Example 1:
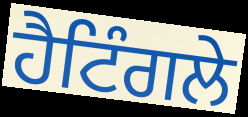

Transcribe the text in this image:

ਹੈਟਿੰਗਲੇ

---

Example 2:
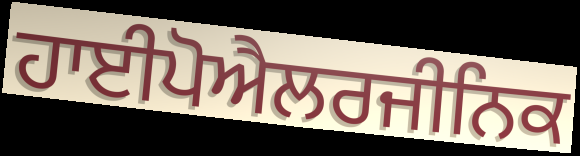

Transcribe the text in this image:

ਹਾਈਪੋਐਲਰਜੀਨਿਕ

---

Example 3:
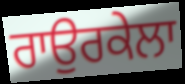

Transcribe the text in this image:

ਰਾਉਰਕੇਲਾ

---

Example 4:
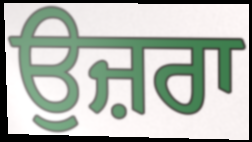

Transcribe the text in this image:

ਉਜ਼ਰਾ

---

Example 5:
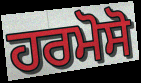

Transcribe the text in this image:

ਹਰਮੋਸੋ